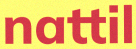
nattil